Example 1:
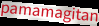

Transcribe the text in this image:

pamamagitan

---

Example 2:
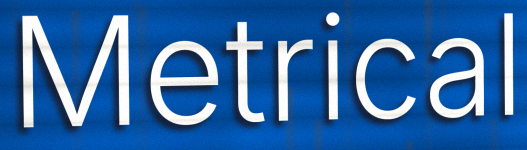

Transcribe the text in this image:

Metrical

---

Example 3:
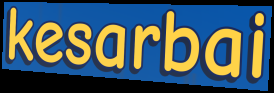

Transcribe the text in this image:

kesarbai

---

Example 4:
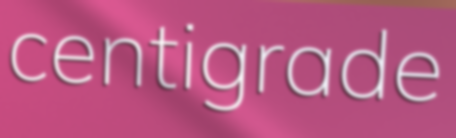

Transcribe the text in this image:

centigrade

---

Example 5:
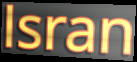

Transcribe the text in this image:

Isran